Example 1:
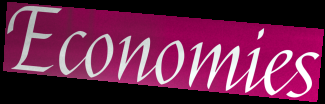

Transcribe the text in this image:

Economies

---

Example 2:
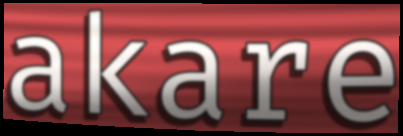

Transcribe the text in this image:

akare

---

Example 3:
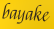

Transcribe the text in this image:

bayake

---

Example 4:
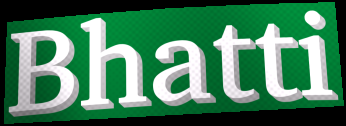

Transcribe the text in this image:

Bhatti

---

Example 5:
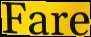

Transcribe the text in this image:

Fare